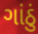
ગાંઠું